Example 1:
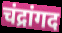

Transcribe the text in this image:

चंद्रांगद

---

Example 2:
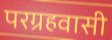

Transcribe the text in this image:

परग्रहवासी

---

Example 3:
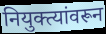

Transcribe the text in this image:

नियुक्त्यांवरून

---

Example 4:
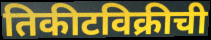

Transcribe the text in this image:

तिकीटविक्रीची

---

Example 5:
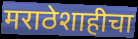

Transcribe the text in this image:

मराठेशाहीचा